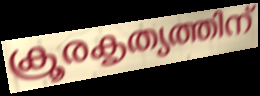
ക്രൂരകൃത്യത്തിന്